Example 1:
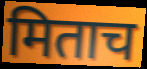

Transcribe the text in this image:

मिताच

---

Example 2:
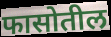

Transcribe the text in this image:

फासोतील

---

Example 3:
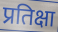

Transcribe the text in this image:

प्रतिक्षा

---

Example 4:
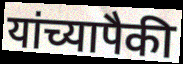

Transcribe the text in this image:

यांच्यापैकी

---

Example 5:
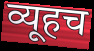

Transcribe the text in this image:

व्यूहच